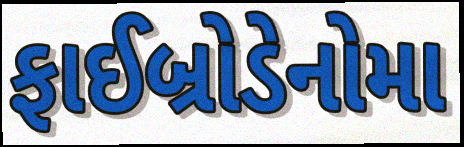
ફાઈબ્રોડેનોમા